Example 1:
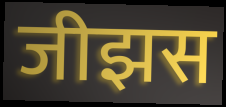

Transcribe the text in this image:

जीझस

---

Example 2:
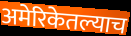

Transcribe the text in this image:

अमेरिकेतल्याच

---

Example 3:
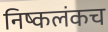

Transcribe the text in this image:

निष्कलंकच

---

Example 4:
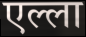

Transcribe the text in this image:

एल्ला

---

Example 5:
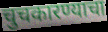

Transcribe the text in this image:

चुचकारण्याचा